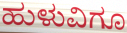
ಹುಳುವಿಗೂ